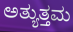
ಅತ್ಯುತ್ತಮ